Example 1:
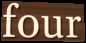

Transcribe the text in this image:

four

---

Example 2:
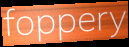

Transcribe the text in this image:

foppery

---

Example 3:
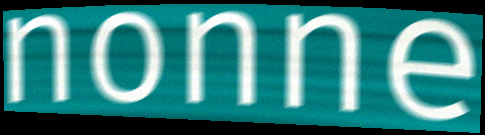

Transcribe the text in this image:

nonne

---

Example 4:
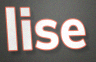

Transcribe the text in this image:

lise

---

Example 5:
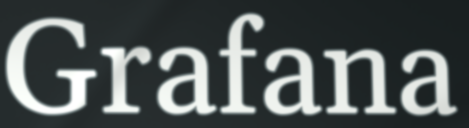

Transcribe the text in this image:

Grafana